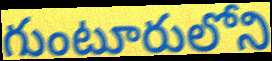
గుంటూరులోని